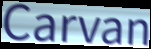
Carvan